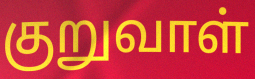
குறுவாள்